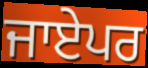
ਜਾਏਪਰ